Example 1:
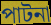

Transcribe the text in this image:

পাটনা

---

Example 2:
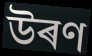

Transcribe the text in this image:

উৰণ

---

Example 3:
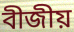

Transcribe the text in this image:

বীজীয়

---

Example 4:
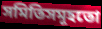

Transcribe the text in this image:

সমিতিসমূহতো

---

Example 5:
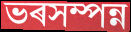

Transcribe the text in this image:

ভৰসম্পন্ন